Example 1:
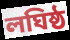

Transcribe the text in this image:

লঘিষ্ঠ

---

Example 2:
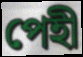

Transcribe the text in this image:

পেহী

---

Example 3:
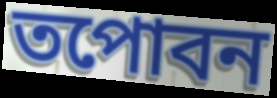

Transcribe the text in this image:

তপোবন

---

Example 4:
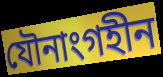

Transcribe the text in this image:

যৌনাংগহীন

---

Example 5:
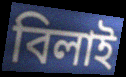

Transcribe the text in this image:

বিলাই